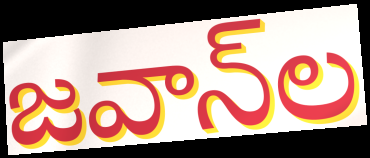
జవాన్‌ల